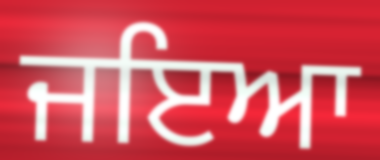
ਜਇਆ